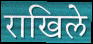
राखिले